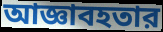
আজ্ঞাবহতার